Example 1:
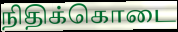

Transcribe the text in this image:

நிதிக்கொடை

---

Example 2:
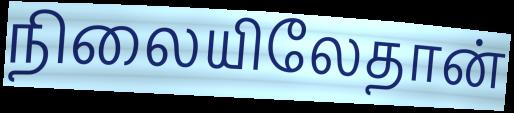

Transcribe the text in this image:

நிலையிலேதான்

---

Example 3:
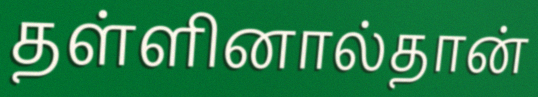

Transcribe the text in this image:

தள்ளினால்தான்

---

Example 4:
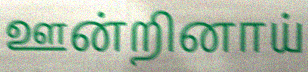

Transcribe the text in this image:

ஊன்றினாய்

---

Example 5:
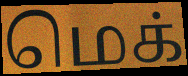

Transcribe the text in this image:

மெக்